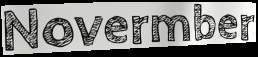
Novermber